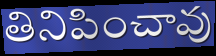
తినిపించావు